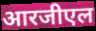
आरजीएल